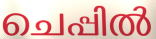
ചെപ്പിൽ